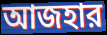
আজহার